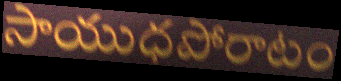
సాయుధపోరాటం